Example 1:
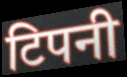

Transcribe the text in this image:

टिपनी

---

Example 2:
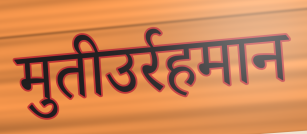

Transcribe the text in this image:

मुतीउर्रहमान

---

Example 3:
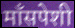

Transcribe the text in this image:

माँसपेशी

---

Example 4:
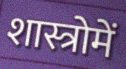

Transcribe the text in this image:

शास्त्रोमें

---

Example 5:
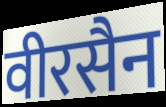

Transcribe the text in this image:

वीरसैन